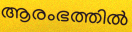
ആരംഭത്തിൽ